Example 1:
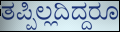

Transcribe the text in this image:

ತಪ್ಪಿಲ್ಲದಿದ್ದರೂ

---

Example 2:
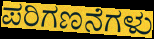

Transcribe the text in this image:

ಪರಿಗಣನೆಗಳು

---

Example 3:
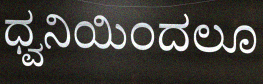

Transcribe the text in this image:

ಧ್ವನಿಯಿಂದಲೂ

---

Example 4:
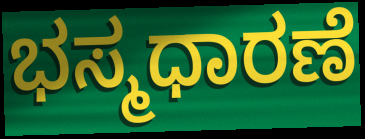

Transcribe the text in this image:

ಭಸ್ಮಧಾರಣೆ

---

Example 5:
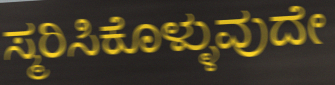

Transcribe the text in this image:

ಸ್ಮರಿಸಿಕೊಳ್ಳುವುದೇ